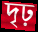
দৃঢ়